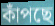
কাঁপছে